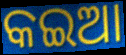
କଇଆ